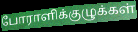
போராளிக்குழுக்கள்